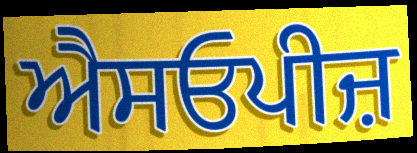
ਐਸਓਪੀਜ਼